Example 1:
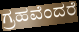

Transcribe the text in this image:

ಗ್ರಹವೆಂದರೆ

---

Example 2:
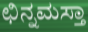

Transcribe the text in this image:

ಛಿನ್ನಮಸ್ತಾ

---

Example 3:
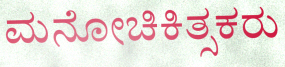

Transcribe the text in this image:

ಮನೋಚಿಕಿತ್ಸಕರು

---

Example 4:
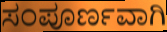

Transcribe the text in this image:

ಸಂಪೂರ್ಣವಾಗಿ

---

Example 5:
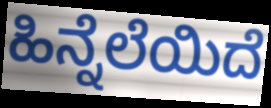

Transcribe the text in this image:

ಹಿನ್ನೆಲೆಯಿದೆ